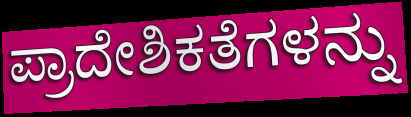
ಪ್ರಾದೇಶಿಕತೆಗಳನ್ನು